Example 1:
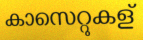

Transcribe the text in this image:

കാസെറ്റുകള്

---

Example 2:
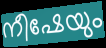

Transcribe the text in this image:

നീഷേയും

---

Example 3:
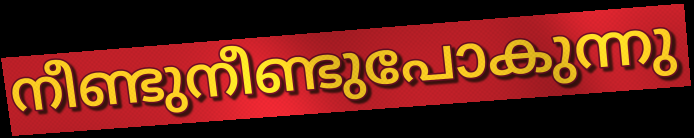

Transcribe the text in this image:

നീണ്ടുനീണ്ടുപോകുന്നു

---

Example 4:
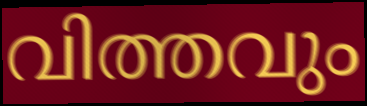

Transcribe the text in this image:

വിത്തവും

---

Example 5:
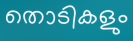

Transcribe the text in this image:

തൊടികളും